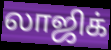
லாஜிக்